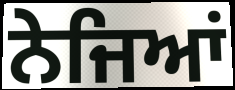
ਨੇਜਿਆਂ